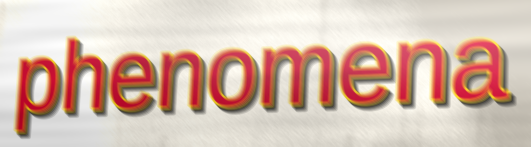
phenomena